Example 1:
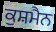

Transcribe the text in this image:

ਕੁਸ਼ਮੈਨ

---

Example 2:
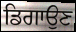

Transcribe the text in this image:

ਡਿਗਾਉਣ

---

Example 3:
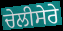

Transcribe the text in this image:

ਚੇਲੀਸੇਰੇ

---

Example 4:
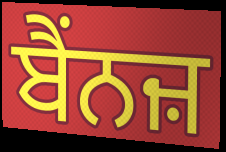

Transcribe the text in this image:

ਬੈਂਨਜ਼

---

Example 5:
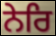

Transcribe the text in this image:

ਨੇਰਿ